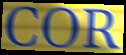
COR